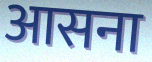
आसना